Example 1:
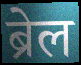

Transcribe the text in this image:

ब्रेल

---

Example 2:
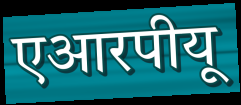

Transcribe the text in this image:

एआरपीयू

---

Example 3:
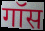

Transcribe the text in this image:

गॉस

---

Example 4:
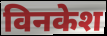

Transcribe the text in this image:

विनकेश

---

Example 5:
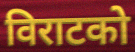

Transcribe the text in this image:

विराटको